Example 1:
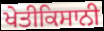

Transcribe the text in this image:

ਖੇਤੀਕਿਸਾਨੀ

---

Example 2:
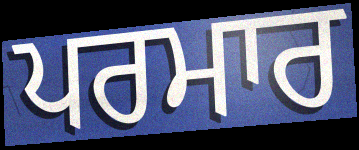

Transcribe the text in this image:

ਪਰਮਾਰ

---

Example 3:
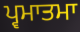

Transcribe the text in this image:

ਪ੍ਵਮਾਤਮਾ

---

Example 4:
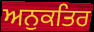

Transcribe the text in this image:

ਅਨੁਕਤਿਰ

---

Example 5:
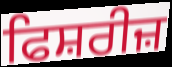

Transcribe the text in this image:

ਫਿਸ਼ਰੀਜ਼